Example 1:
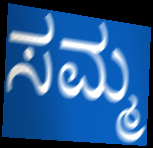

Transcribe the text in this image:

ಸಮ್ಮ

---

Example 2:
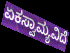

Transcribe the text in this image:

ಏಕಸ್ವಾಮ್ಯವಿದೆ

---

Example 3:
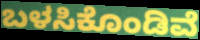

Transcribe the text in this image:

ಬಳಸಿಕೊಂಡಿವೆ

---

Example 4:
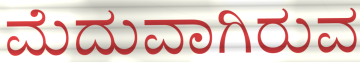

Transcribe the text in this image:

ಮೆದುವಾಗಿರುವ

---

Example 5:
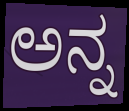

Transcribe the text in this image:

ಅನ್ನ